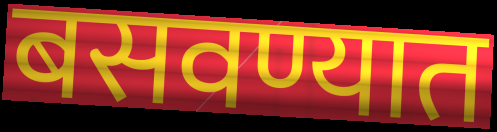
बसवण्यात